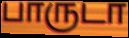
பாருடா